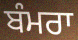
ਬੰਮਰਾ